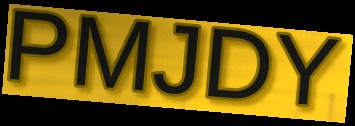
PMJDY